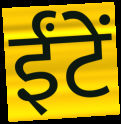
ईंटें